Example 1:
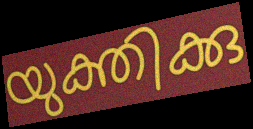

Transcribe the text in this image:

യുക്തിക്കു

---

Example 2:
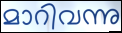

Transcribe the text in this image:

മാറിവന്നു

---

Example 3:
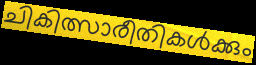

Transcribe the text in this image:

ചികിത്സാരീതികൾക്കും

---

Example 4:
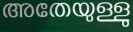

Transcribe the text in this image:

അതേയുള്ളു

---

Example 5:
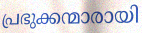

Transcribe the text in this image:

പ്രഭുക്കന്മാരായി